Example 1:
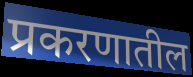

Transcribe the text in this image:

प्रकरणातील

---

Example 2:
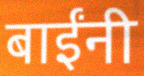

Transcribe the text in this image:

बाईंनी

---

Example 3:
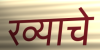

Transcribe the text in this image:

रव्याचे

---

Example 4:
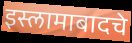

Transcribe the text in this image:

इस्लामाबादचे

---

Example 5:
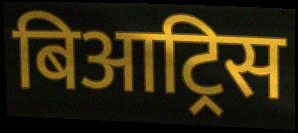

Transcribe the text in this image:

बिआट्रिस